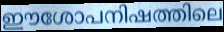
ഈശോപനിഷത്തിലെ